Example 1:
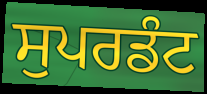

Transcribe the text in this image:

ਸੁਪਰਡੰਟ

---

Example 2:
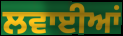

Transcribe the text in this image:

ਲਵਾਈਆਂ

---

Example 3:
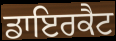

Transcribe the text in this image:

ਡਾਇਰਕੈਟ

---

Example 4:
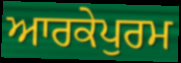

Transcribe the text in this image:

ਆਰਕੇਪੁਰਮ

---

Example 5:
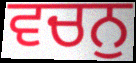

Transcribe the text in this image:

ਵਚਨੁ